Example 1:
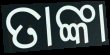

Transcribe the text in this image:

ତାଙ୍କା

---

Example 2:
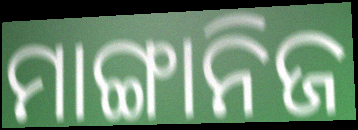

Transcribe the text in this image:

ମାଙ୍ଗାନିଜ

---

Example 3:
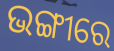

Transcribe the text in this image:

ଭଙ୍ଗୀରେ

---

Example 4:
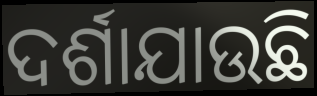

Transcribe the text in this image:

ଦର୍ଶାଯାଉଛି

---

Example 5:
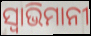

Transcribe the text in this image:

ସ୍ବାଭିମାନୀ